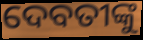
ଦେବତୀଙ୍କୁ